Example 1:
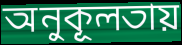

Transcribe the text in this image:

অনুকূলতায়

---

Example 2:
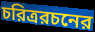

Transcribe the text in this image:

চরিত্ররচনের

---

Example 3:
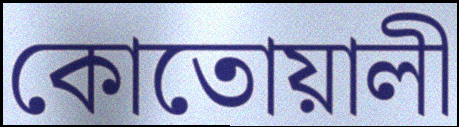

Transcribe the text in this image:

কোতোয়ালী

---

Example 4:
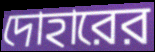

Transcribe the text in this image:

দোহারের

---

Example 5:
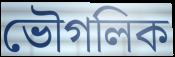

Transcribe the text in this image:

ভৌগলিক